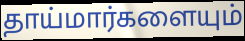
தாய்மார்களையும்